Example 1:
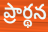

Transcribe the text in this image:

ప్రార్థన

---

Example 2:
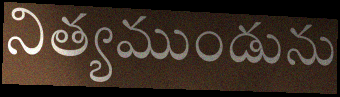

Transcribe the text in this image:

నిత్యముండును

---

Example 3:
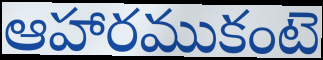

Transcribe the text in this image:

ఆహారముకంటె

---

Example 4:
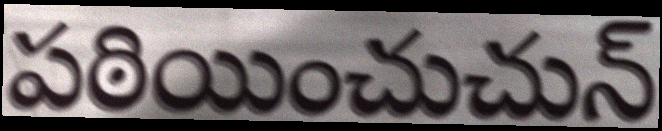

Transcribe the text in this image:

పఠియించుచున్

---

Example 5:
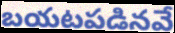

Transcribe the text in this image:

బయటపడినవే